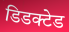
डिडक्टेड